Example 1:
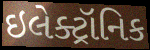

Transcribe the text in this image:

ઇલેક્ટ્રૉનિક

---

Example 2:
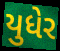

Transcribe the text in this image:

યુધેર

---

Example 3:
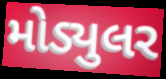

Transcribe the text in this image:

મોડ્યુલર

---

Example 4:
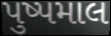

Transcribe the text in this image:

પુષ્પમાલ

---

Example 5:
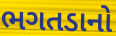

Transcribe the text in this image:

ભગતડાનો